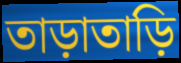
তাড়াতাড়ি